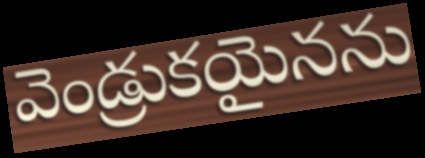
వెండ్రుకయైనను